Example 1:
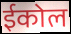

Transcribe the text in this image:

ईकोल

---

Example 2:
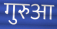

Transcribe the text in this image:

गुरुआ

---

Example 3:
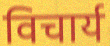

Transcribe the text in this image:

विचार्य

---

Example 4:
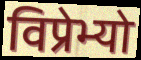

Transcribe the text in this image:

विप्रेभ्यो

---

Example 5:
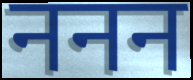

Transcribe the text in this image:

ननन